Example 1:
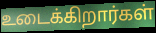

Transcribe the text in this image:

உடைக்கிறார்கள்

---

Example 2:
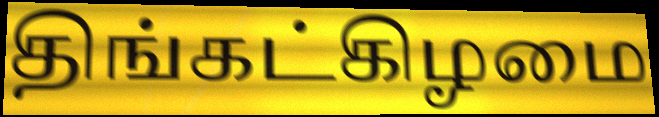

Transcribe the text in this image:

திங்கட்கிழமை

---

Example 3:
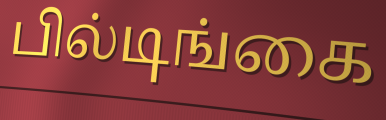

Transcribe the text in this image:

பில்டிங்கை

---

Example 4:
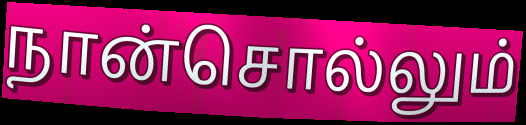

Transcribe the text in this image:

நான்சொல்லும்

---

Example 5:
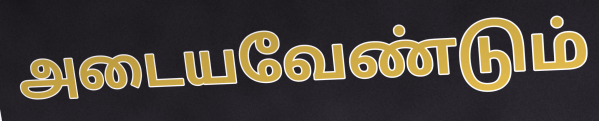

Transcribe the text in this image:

அடையவேண்டும்